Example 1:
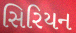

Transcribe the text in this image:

સિરિયન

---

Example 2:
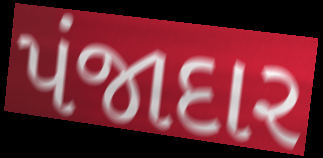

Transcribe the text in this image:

પંજાદાર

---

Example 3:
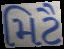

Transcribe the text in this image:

મિટૈ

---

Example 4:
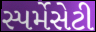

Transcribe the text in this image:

સ્પર્મેસેટી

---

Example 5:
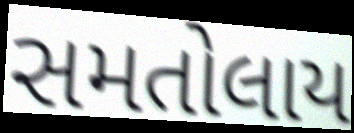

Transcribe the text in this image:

સમતોલાય